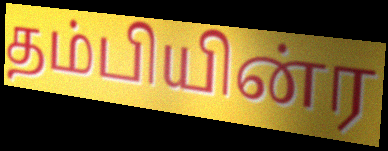
தம்பியின்ர